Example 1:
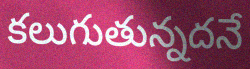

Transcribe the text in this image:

కలుగుతున్నదనే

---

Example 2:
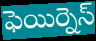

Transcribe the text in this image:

ఫెయిర్నెస్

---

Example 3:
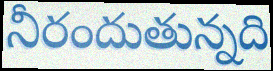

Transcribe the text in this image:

నీరందుతున్నది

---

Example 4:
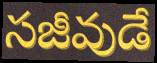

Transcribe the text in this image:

సజీవుడే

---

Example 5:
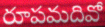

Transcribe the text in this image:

రూపమదివో